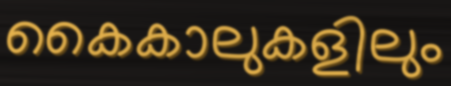
കൈകാലുകളിലും